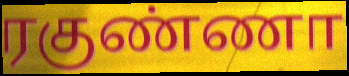
ரகுண்ணா